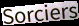
Sorciers